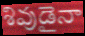
శివుడైనా